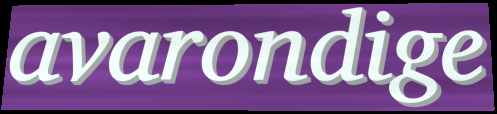
avarondige